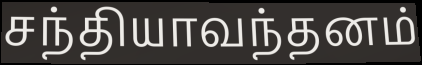
சந்தியாவந்தனம்